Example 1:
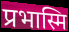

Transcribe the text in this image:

प्रभास्मि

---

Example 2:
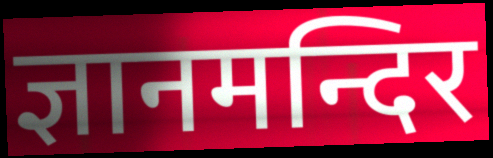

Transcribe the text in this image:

ज्ञानमन्दिर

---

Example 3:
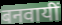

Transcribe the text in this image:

बनवायीं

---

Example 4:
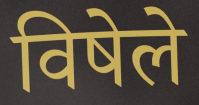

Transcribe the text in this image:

विषेले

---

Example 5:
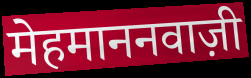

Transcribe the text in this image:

मेहमाननवाज़ी